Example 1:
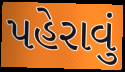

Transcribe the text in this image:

પહેરાવું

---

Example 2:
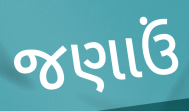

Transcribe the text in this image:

જણાઉં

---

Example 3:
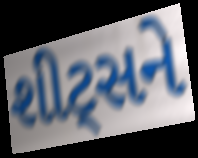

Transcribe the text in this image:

શીટ્સને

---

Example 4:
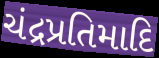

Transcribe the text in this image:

ચંદ્રપ્રતિમાદિ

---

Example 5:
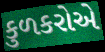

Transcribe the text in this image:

કુળકરોએ